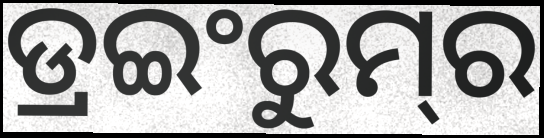
ଡ୍ରଇଂରୁମ୍‌ର